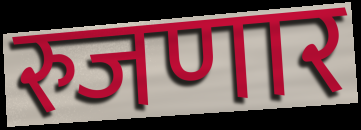
रुजणार